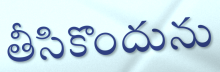
తీసికొందును